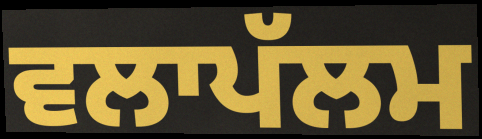
ਵਲਾਪੱਲਮ